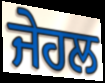
ਜੇਹਲ